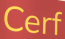
Cerf